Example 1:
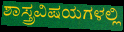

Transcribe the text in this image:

ಶಾಸ್ತ್ರವಿಷಯಗಳಲ್ಲಿ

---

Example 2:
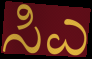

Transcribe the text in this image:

ಸಿಎ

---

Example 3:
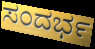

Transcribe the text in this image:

ಸಂದರ್ಭ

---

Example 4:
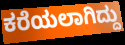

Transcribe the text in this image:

ಕರೆಯಲಾಗಿದ್ದು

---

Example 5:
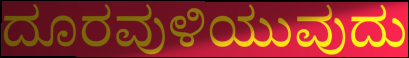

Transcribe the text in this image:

ದೂರವುಳಿಯುವುದು